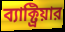
ব্যাক্ট্রিয়ার